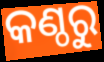
କଣ୍ଠରୁ